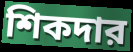
শিকদার